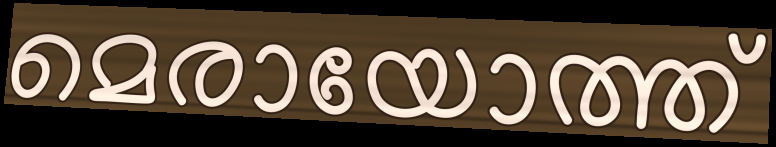
മെരായോത്ത്